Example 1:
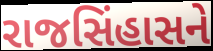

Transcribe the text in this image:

રાજસિંહાસને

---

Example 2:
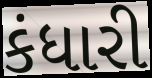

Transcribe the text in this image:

કંધારી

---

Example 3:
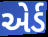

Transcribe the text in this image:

એર્ડ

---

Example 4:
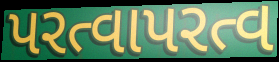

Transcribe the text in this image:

પરત્વાપરત્વ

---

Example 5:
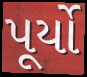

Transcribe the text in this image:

પૂર્યો